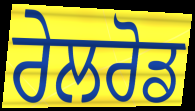
ਰੇਲਰੋਡ